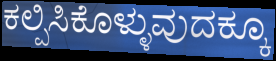
ಕಲ್ಪಿಸಿಕೊಳ್ಳುವುದಕ್ಕೂ